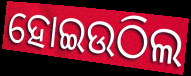
ହୋଇଉଠିଲ